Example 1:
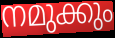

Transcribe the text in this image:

നമുക്കും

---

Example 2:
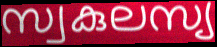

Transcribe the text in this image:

സ്വകുലസ്യ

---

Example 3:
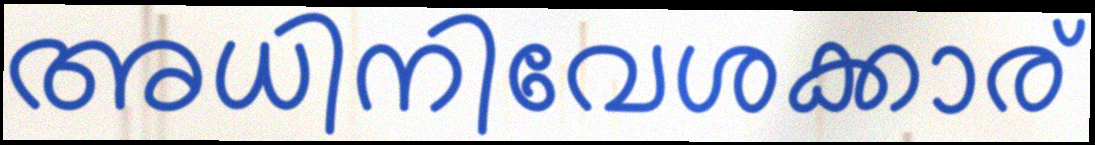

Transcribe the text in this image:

അധിനിവേശക്കാര്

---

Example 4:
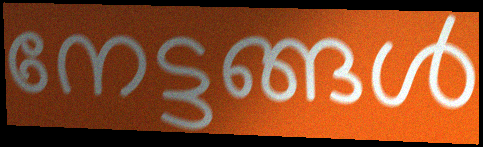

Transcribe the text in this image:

നേട്ടങ്ങൾ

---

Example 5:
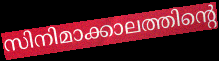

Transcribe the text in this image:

സിനിമാക്കാലത്തിന്റെ